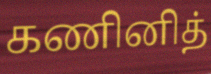
கணினித்